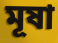
মূষা